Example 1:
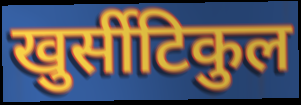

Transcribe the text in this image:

खुर्सीटिकुल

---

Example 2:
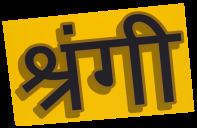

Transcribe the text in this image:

श्रंगी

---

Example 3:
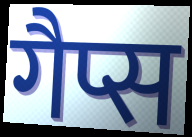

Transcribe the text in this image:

गैप्स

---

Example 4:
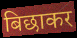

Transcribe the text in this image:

बिछाकर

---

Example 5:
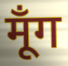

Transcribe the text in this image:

मूँग